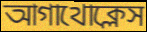
আগাথোক্লেস